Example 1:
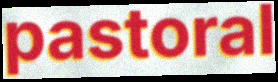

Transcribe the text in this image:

pastoral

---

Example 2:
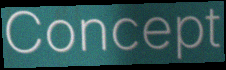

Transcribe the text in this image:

Concept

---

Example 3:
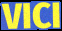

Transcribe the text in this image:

VICI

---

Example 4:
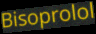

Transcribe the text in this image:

Bisoprolol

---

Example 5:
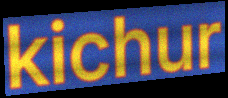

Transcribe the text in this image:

kichur